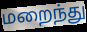
மறைந்து